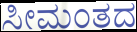
ಸೀಮಂತದ